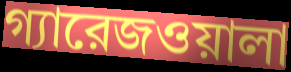
গ্যারেজওয়ালা